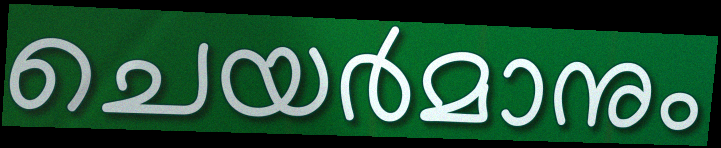
ചെയർമാനും